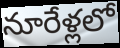
నూరేళ్లలో